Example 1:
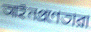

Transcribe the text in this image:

আইনপ্রণেতারা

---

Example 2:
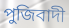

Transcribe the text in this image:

পুজিবাদী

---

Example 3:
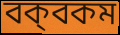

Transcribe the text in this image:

বক্‌বকম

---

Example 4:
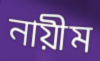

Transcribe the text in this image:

নায়ীম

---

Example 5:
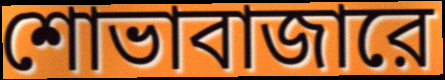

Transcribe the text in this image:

শোভাবাজারে